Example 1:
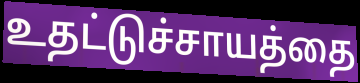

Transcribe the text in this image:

உதட்டுச்சாயத்தை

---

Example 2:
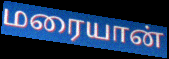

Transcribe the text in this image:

மரையான்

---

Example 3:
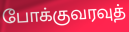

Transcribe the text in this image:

போக்குவரவுத்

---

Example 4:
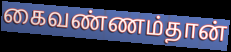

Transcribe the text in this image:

கைவண்ணம்தான்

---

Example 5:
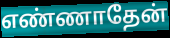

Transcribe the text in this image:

எண்ணாதேன்